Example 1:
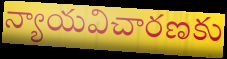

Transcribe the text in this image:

న్యాయవిచారణకు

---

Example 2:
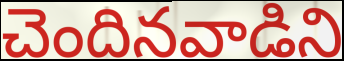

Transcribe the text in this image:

చెందినవాడిని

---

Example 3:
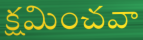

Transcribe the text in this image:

క్షమించవా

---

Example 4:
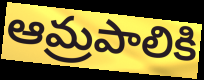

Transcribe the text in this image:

ఆమ్రపాలికి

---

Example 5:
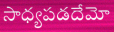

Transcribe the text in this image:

సాధ్యపడదేమో